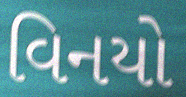
વિનયો